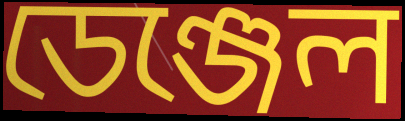
ডেঞ্জেল